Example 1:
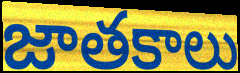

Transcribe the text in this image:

జాతకాలు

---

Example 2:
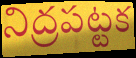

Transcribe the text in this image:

నిద్రపట్టక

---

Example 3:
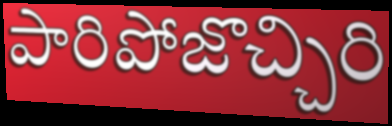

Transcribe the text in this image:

పారిపోజొచ్చిరి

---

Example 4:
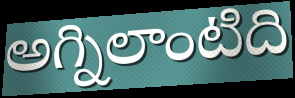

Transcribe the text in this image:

అగ్నిలాంటిది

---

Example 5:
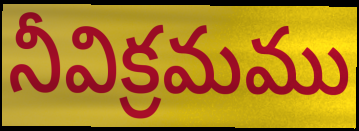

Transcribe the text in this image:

నీవిక్రమము